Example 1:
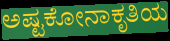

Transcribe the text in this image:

ಅಷ್ಟಕೋನಾಕೃತಿಯ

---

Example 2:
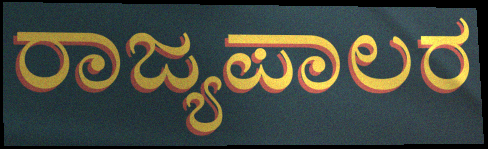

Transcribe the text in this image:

ರಾಜ್ಯಪಾಲರ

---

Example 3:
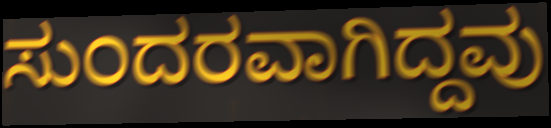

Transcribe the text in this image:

ಸುಂದರವಾಗಿದ್ದವು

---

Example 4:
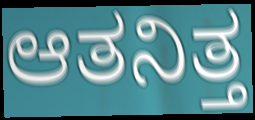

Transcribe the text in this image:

ಆತನಿತ್ತ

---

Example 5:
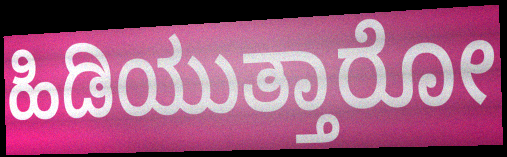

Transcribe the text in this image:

ಹಿಡಿಯುತ್ತಾರೋ